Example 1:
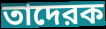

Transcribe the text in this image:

তাদেরক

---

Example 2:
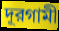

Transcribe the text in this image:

দূরগামী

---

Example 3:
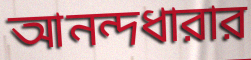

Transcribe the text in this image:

আনন্দধারার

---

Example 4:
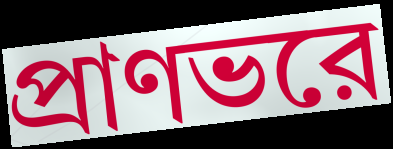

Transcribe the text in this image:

প্রাণভরে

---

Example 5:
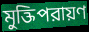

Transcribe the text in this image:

মুক্তিপরায়ণ